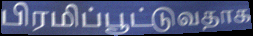
பிரமிப்பூட்டுவதாக